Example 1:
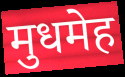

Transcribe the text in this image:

मुधमेह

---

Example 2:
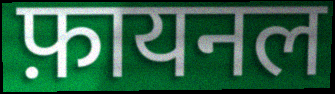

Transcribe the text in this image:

फ़ायनल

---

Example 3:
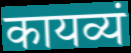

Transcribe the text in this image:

कायव्यं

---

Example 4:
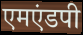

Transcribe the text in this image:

एमएंडपी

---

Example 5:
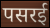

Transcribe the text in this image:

पसरई